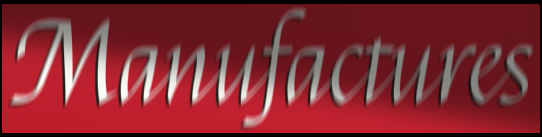
Manufactures